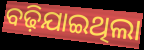
ବଢ଼ିଯାଇଥିଲା